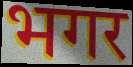
भगर